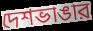
দেশভাঙার